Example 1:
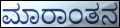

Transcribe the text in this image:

ಮಾರಾಂತನ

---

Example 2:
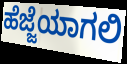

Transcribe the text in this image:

ಹೆಜ್ಜೆಯಾಗಲಿ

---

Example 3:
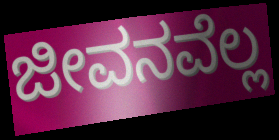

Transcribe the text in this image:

ಜೀವನವೆಲ್ಲ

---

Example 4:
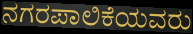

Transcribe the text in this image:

ನಗರಪಾಲಿಕೆಯವರು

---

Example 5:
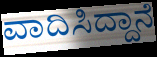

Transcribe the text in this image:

ವಾದಿಸಿದ್ದಾನೆ